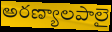
అరణ్యాలపాలై